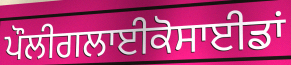
ਪੌਲੀਗਲਾਈਕੋਸਾਈਡਾਂ